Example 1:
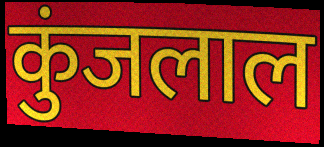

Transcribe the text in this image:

कुंजलाल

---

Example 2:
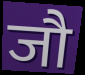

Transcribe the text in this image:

जौ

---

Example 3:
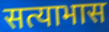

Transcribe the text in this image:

सत्याभास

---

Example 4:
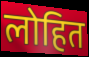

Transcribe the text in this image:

लोहित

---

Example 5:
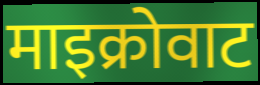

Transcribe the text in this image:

माइक्रोवाट